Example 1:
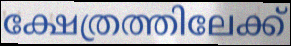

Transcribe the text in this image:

ക്ഷേത്രത്തിലേക്ക്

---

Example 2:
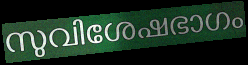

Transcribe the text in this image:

സുവിശേഷഭാഗം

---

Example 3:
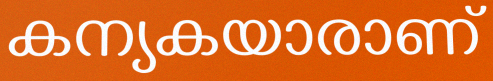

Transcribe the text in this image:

കന്യകയാരാണ്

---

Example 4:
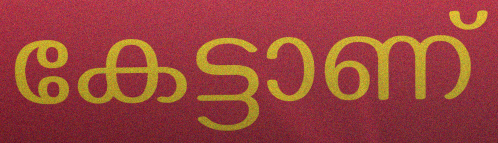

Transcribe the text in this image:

കേട്ടാണ്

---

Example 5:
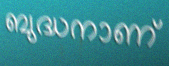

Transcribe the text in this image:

ബുദ്ധനാണ്